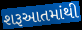
શરૂઆતમાંથી